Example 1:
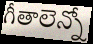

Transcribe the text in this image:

గీతాలెన్నో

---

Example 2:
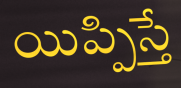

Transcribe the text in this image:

యిప్పిస్తే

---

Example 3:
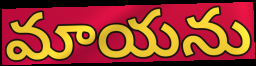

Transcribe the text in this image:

మాయను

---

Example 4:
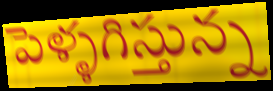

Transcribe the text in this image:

పెళ్ళగిస్తున్న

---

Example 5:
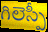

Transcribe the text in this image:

గిలెస్పీ